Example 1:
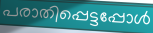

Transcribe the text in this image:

പരാതിപ്പെട്ടപ്പോൾ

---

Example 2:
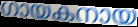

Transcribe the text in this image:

ഗായകനായ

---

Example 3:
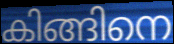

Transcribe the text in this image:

കിങ്ങിനെ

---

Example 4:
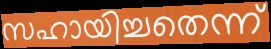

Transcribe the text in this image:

സഹായിച്ചതെന്ന്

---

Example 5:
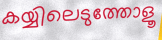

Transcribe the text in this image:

കയ്യിലെടുത്തോളൂ